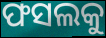
ଫସଲକୁ